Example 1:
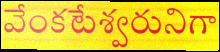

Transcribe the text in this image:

వేంకటేశ్వరునిగా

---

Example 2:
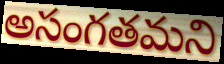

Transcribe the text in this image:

అసంగతమని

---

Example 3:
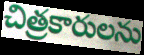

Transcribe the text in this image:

చిత్రకారులను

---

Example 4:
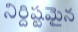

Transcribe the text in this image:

నిర్దిష్టమైన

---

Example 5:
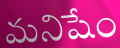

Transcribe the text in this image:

మనిషేం